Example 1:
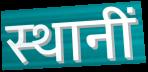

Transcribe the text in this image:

स्थानीं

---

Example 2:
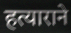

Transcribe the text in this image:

हत्याराने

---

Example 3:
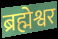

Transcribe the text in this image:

ब्रह्मेश्वर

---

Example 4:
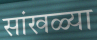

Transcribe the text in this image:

सांखळ्या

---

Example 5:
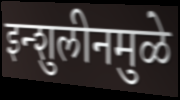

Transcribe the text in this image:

इन्शुलीनमुळे